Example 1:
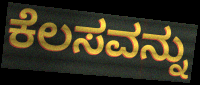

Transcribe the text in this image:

ಕೆಲಸವನ್ನು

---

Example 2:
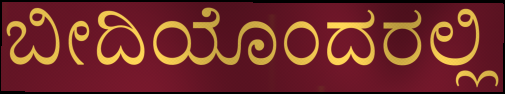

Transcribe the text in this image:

ಬೀದಿಯೊಂದರಲ್ಲಿ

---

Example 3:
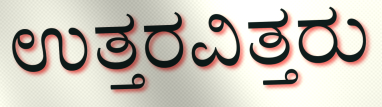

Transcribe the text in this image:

ಉತ್ತರವಿತ್ತರು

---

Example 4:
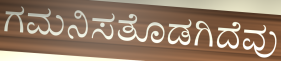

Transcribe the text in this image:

ಗಮನಿಸತೊಡಗಿದೆವು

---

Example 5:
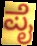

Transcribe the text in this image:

ಪೈ